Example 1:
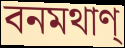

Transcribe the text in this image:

বনমথাণ্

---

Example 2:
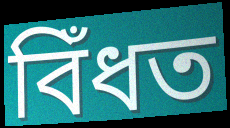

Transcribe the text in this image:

বিঁধত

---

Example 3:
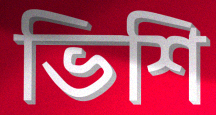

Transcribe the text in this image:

ভিশি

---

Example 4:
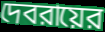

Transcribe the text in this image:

দেবরায়ের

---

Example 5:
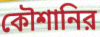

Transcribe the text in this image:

কৌশানির